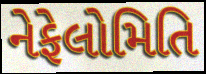
નેફેલોમિતિ